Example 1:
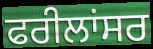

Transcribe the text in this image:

ਫਰੀਲਾਂਸਰ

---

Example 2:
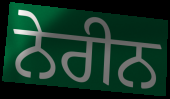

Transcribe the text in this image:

ਨੇਰੀਨ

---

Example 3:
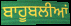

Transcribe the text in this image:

ਬਾਹੂਬਲੀਆਂ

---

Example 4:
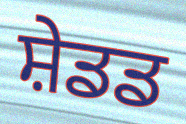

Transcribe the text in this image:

ਸ਼ੇਡਡ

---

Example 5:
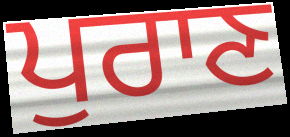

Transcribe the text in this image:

ਪੁਰਾਣ